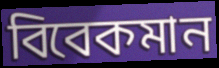
বিবেকমান